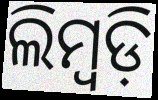
ଲିମ୍ବଡ଼ି